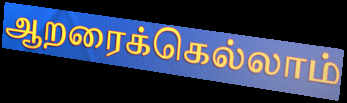
ஆறரைக்கெல்லாம்